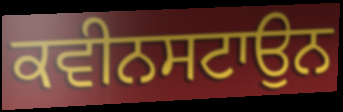
ਕਵੀਨਸਟਾਉਨ